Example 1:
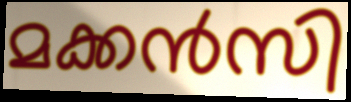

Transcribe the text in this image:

മക്കൻസി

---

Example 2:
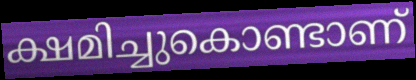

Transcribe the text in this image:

ക്ഷമിച്ചുകൊണ്ടാണ്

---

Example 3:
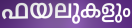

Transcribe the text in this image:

ഫയലുകളും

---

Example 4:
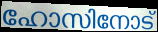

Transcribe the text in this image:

ഹോസിനോട്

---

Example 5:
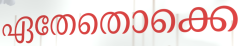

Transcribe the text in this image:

ഏതേതൊക്കെ